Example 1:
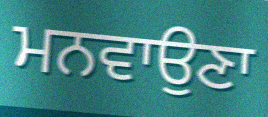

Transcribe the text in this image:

ਮਨਵਾਉਣਾ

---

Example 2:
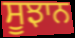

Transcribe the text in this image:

ਸੂਝਾਨ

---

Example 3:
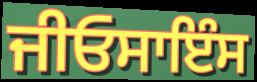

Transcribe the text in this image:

ਜੀਓਸਾਇੰਸ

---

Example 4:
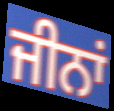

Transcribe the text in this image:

ਜੀਨਾਂ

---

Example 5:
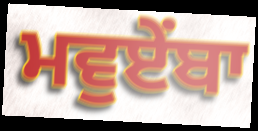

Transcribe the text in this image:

ਮਵੁਏਂਬਾ